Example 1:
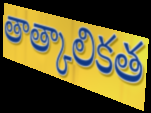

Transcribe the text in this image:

తాత్కాలికత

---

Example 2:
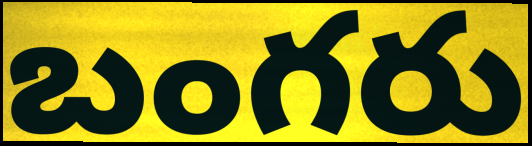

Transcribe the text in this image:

బంగరు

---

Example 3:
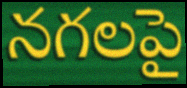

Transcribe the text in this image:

నగలపై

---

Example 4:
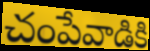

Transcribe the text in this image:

చంపేవాడికి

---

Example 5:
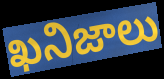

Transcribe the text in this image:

ఖనిజాలు